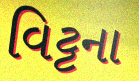
વિટ્ટના